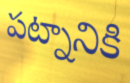
పట్నానికి